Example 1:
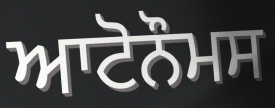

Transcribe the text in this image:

ਆਟੋਨੌਮਸ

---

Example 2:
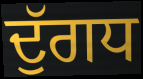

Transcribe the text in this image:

ਦੁੱਗਧ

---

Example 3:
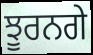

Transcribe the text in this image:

ਝੂਰਨਗੇ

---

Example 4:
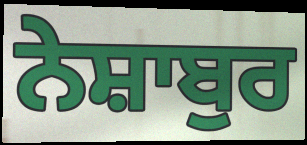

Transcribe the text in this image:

ਨੇਸ਼ਾਬੁਰ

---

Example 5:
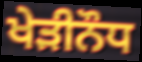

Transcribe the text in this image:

ਖੇੜੀਨੌਧ